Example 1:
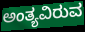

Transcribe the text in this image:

ಅಂತ್ಯವಿರುವ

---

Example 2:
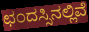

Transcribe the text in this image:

ಛಂದಸ್ಸಿನಲ್ಲಿವೆ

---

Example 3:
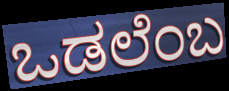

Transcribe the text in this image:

ಒಡಲೆಂಬ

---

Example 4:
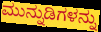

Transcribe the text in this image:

ಮುನ್ನುಡಿಗಳನ್ನು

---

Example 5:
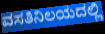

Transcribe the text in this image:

ವಸತಿನಿಲಯದಲ್ಲಿ